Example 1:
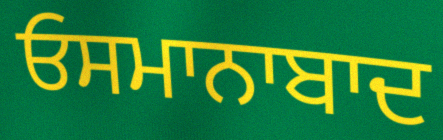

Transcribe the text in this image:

ਓਸਮਾਨਾਬਾਦ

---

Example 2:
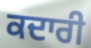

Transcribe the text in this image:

ਕਦਾਰੀ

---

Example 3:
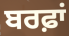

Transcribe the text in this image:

ਬਰਫ਼ਾਂ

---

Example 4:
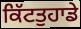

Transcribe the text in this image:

ਕਿੱਟਤੁਹਾਡੇ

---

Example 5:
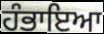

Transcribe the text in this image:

ਹੰਭਾਇਆ